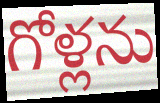
గోళ్లను